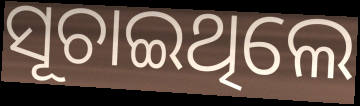
ସୂଚାଇଥିଲେ